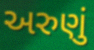
અરુણું